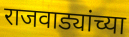
राजवाड्यांच्या